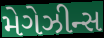
મેગેઝીન્સ